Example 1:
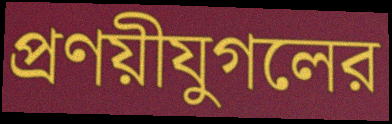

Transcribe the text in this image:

প্রণয়ীযুগলের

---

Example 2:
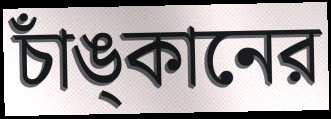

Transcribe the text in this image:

চাঁঙ্‌কানের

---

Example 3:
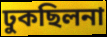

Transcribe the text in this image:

ঢুকছিলনা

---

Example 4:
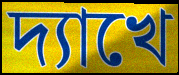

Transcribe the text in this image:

দ্যাখে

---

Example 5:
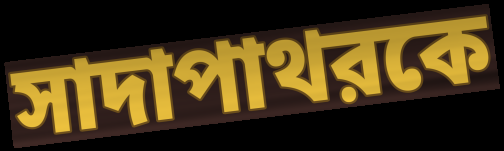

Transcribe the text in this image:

সাদাপাথরকে